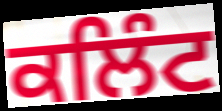
ਕਲਿੰਟ